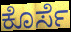
ಕೊರ್ಸೆ